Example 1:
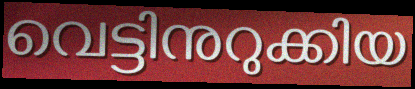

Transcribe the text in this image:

വെട്ടിനുറുക്കിയ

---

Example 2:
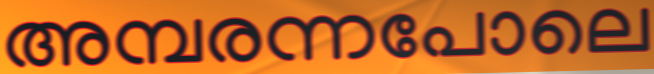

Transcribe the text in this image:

അമ്പരന്നപോലെ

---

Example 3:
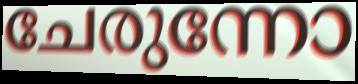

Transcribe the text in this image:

ചേരുന്നോ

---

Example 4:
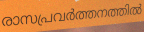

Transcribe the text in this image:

രാസപ്രവർത്തനത്തിൽ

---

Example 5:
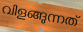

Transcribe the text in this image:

വിളങ്ങുന്നത്